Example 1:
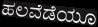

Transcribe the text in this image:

ಹಲವೆಡೆಯೂ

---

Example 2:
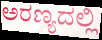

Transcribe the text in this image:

ಅರಣ್ಯದಲ್ಲಿ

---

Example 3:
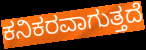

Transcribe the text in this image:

ಕನಿಕರವಾಗುತ್ತದೆ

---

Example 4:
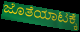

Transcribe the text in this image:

ಜೊತೆಯಾಟಕ್ಕೆ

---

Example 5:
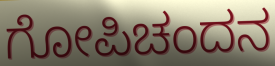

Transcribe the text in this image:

ಗೋಪಿಚಂದನ